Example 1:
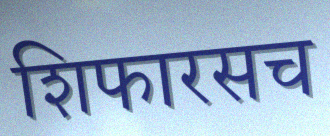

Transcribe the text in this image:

शिफारसच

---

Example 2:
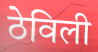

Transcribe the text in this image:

ठेविली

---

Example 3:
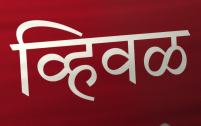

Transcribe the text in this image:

व्हिवळ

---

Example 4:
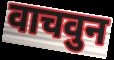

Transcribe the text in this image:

वाचवुन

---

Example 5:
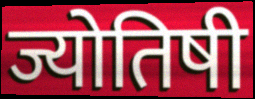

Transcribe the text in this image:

ज्योतिषी